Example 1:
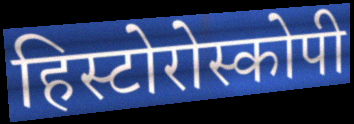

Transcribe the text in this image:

हिस्टोरोस्कोपी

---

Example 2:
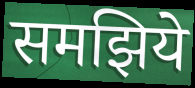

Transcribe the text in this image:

समझिये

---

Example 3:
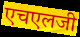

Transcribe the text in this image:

एचएलजी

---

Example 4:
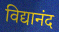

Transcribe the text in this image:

विद्यानंद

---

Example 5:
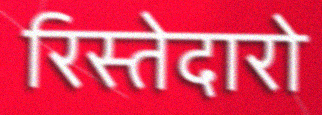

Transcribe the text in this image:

रिस्तेदारो